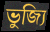
ভুজ্যি